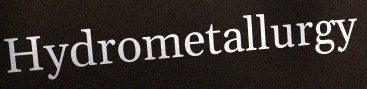
Hydrometallurgy